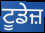
ਟੂਡੇਜ਼